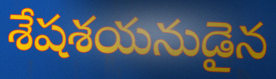
శేషశయనుడైన